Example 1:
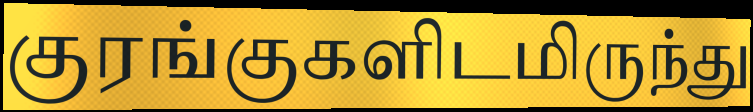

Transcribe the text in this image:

குரங்குகளிடமிருந்து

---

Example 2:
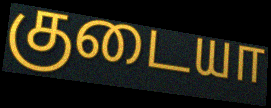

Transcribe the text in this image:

குடையா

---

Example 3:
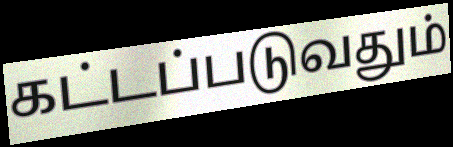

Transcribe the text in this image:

கட்டப்படுவதும்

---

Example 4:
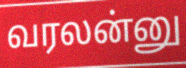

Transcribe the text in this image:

வரலன்னு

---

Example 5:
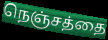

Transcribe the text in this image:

நெஞ்சத்தை